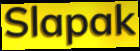
Slapak